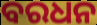
ବରଧନ